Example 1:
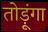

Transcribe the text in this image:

तोड़ूंगा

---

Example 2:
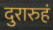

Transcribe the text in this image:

दुरारुहं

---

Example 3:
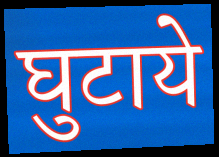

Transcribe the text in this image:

घुटाये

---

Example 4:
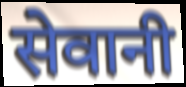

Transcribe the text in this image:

सेवानी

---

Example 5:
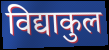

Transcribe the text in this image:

विद्याकुल